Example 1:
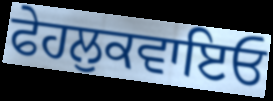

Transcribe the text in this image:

ਫੇਹਲੁਕਵਾਇਓ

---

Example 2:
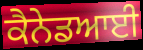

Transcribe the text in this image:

ਕੈਨੇਡਆਈ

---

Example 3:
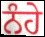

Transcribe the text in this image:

ਨੰਹੇ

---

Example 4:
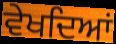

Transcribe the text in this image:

ਵੇਖਦਿਆਂ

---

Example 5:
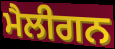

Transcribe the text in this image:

ਮੈਲੀਗਨ